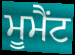
ਮੂਮੈਂਟ